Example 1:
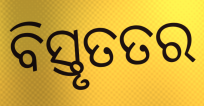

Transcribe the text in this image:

ବିସ୍ତୃତତର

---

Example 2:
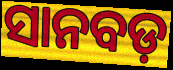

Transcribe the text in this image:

ସାନବଡ଼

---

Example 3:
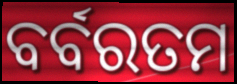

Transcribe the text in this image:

ବର୍ବରତମ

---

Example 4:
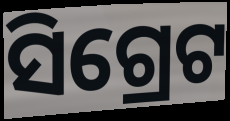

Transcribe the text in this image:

ସିଗ୍ରେଟ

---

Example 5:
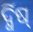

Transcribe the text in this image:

ର୍ଦ୍ଧିଷ୍